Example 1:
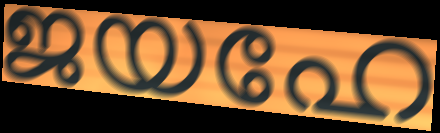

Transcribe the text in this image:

ജയഹേ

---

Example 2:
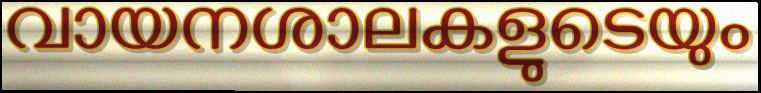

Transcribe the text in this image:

വായനശാലകളുടെയും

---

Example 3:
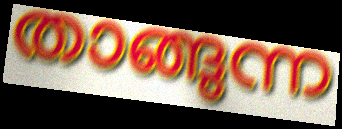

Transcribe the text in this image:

താങ്ങുന്ന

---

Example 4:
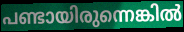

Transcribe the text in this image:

പണ്ടായിരുന്നെങ്കിൽ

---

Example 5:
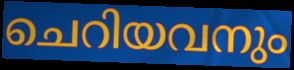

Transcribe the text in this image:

ചെറിയവനും